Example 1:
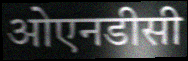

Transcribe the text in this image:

ओएनडीसी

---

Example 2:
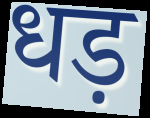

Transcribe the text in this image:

धड़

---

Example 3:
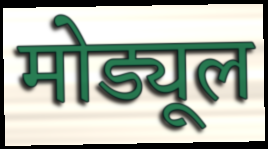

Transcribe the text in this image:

मोड्यूल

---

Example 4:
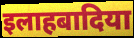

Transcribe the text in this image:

इलाहबादिया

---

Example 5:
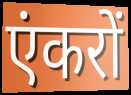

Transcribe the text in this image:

एंकरों